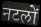
नटलों